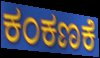
ಕಂಕಣಕೆ